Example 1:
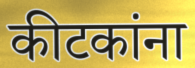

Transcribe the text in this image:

कीटकांना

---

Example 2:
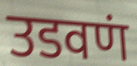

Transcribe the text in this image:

उडवणं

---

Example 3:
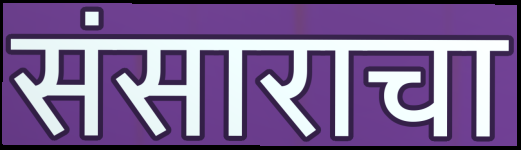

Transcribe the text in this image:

संसाराचा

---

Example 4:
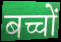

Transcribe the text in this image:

बच्चों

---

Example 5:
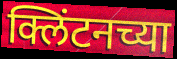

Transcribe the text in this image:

क्लिंटनच्या